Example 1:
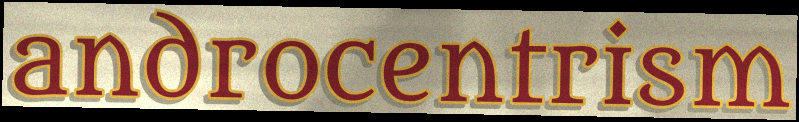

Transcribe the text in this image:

androcentrism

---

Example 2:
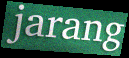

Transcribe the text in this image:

jarang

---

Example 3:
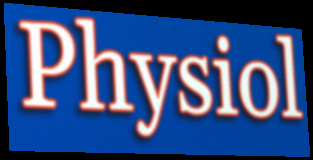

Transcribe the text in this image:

Physiol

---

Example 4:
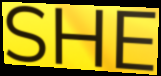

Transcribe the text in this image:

SHE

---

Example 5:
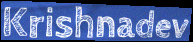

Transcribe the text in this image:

Krishnadev